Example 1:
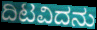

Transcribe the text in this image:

ದಿಟವಿದನು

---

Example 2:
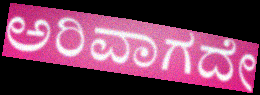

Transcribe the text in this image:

ಅರಿವಾಗದೇ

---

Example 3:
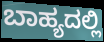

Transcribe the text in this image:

ಬಾಹ್ಯದಲ್ಲಿ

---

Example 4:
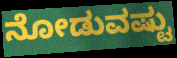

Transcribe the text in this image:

ನೋಡುವಷ್ಟು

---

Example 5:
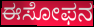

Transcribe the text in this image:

ಈಸೋಫನ